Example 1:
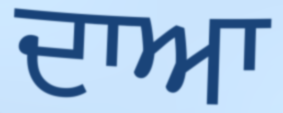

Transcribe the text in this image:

ਦਾਆ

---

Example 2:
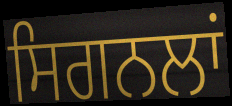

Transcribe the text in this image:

ਸਿਗਨਲਾਂ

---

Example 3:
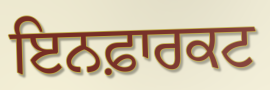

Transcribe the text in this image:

ਇਨਫ਼ਾਰਕਟ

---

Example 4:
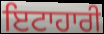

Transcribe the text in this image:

ਇਟਾਹਾਰੀ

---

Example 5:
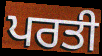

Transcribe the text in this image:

ਪਰਤੀ